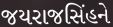
જયરાજસિંહને